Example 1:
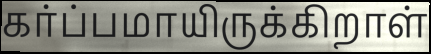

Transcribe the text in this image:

கர்ப்பமாயிருக்கிறாள்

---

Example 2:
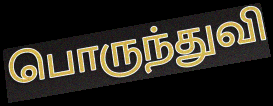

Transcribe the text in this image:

பொருந்துவி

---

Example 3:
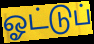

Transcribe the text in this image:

ஓட்டுப்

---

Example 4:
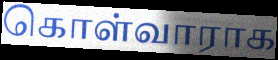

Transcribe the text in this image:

கொள்வாராக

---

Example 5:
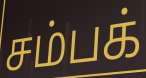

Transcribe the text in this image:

சம்பக்